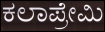
ಕಲಾಪ್ರೇಮಿ